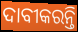
ଦାବୀକରନ୍ତି